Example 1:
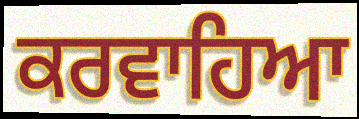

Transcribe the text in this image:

ਕਰਵਾਹਿਆ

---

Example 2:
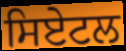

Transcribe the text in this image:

ਸਿਏਟਲ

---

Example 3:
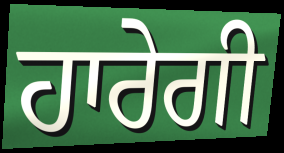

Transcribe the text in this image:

ਹਾਰੇਗੀ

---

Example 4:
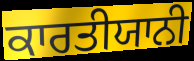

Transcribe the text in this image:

ਕਾਰਤੀਯਾਨੀ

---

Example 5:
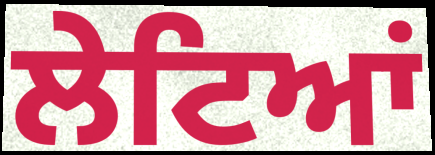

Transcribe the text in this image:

ਲੇਟਿਆਂ